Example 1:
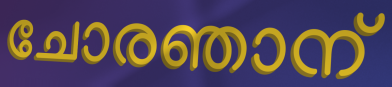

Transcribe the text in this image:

ചോരഞാന്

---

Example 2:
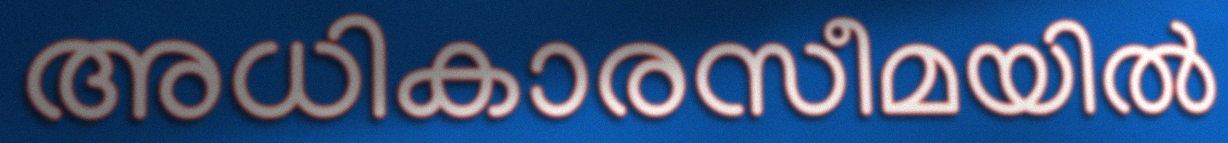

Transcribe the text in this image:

അധികാരസീമയിൽ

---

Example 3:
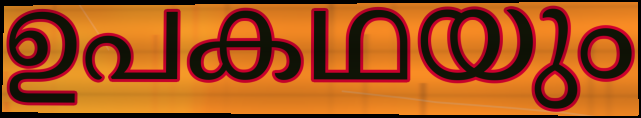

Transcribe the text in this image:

ഉപകഥയും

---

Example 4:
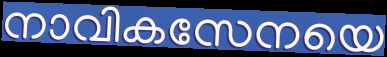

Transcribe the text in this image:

നാവികസേനയെ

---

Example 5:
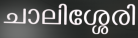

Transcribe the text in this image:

ചാലിശ്ശേരി